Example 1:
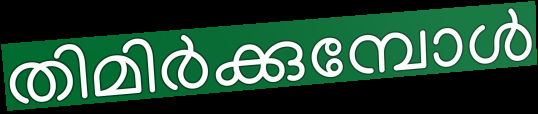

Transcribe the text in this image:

തിമിർക്കുമ്പോൾ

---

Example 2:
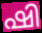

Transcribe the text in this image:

ഷി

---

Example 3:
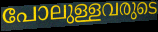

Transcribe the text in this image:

പോലുള്ളവരുടെ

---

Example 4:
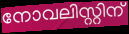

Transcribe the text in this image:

നോവലിസ്റ്റിന്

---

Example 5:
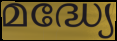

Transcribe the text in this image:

മദ്ധ്യേ